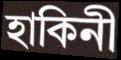
হাকিনী